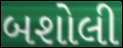
બશોલી